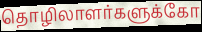
தொழிலாளர்களுக்கோ